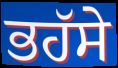
ਭਹੱਸੇ